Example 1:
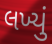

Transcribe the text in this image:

લખ્યું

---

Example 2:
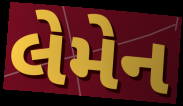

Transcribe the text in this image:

લેમેન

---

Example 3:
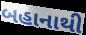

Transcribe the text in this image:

બહાનાથી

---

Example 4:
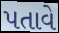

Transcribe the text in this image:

પતાવે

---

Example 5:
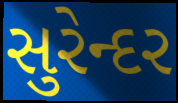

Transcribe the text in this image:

સુરેન્દર